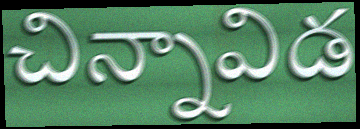
చిన్నావిడ